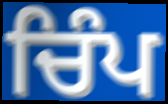
ਚਿੰਪ